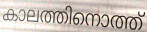
കാലത്തിനൊത്ത്